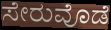
ಸೇರುವೊಡೆ